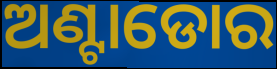
ଅଣ୍ଟାଡୋର